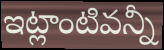
ఇట్లాంటివన్నీ